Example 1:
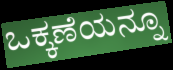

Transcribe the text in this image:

ಒಕ್ಕಣೆಯನ್ನೂ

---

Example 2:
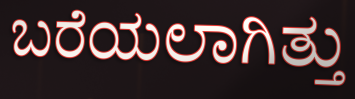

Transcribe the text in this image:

ಬರೆಯಲಾಗಿತ್ತು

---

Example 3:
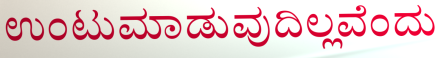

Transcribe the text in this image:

ಉಂಟುಮಾಡುವುದಿಲ್ಲವೆಂದು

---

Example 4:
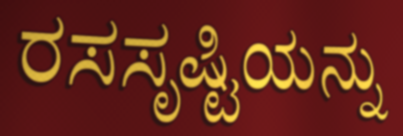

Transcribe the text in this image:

ರಸಸೃಷ್ಟಿಯನ್ನು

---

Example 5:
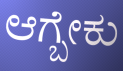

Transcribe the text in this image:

ಆಗ್ಬೇಕು